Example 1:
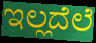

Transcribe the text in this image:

ಇಲ್ಲದೆಲೆ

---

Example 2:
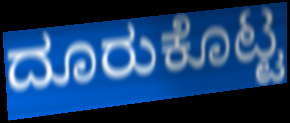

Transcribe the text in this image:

ದೂರುಕೊಟ್ಟ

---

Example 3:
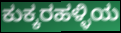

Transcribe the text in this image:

ಕುಕ್ಕರಹಳ್ಳಿಯ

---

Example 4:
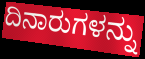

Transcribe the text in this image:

ದಿನಾರುಗಳನ್ನು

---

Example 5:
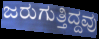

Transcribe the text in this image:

ಜರುಗುತ್ತಿದ್ದವು